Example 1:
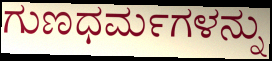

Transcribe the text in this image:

ಗುಣಧರ್ಮಗಳನ್ನು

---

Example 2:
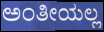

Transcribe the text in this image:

ಅಂತೀಯಲ್ಲ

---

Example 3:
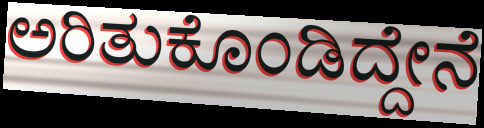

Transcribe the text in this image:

ಅರಿತುಕೊಂಡಿದ್ದೇನೆ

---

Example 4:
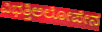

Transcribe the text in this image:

ವಿಭತ್ತಿಅಲೋಪೇನ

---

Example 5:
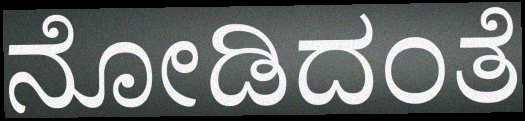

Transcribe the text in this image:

ನೋಡಿದಂತೆ